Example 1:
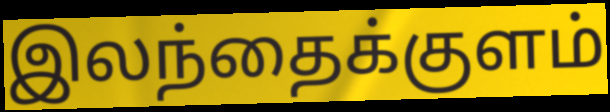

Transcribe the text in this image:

இலந்தைக்குளம்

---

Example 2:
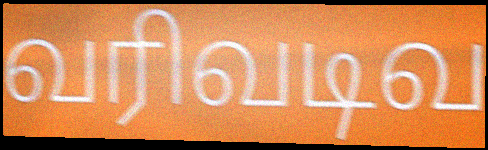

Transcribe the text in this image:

வரிவடிவ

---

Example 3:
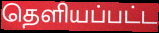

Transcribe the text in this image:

தெளியப்பட்ட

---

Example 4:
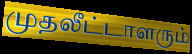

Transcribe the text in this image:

முதலீட்டாளரும்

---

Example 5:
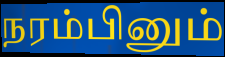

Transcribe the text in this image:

நரம்பினும்